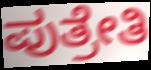
ಪುತ್ರೇತಿ